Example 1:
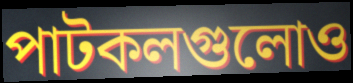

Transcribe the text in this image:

পাটকলগুলোও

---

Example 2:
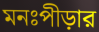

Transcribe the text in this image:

মনঃপীড়ার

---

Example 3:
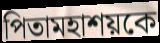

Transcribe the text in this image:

পিতামহাশয়কে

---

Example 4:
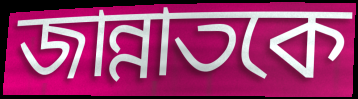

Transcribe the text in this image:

জান্নাতকে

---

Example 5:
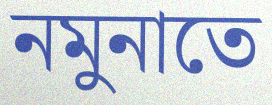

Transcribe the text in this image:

নমুনাতে